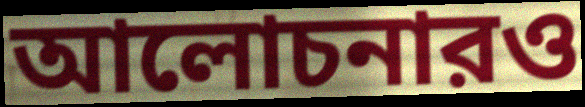
আলোচনারও